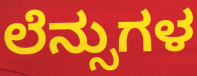
ಲೆನ್ಸುಗಳ